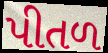
પીતળ